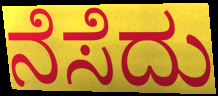
ನೆಸೆದು